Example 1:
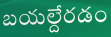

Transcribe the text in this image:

బయల్దేరడం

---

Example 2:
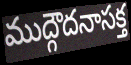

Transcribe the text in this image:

ముద్గౌదనాసక్త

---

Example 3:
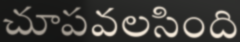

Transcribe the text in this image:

చూపవలసింది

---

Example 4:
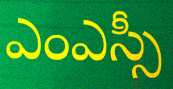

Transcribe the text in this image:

ఎంఎస్సీ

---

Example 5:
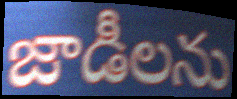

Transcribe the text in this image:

జాడీలను